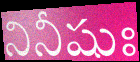
నినీషుః